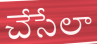
చేసేలా